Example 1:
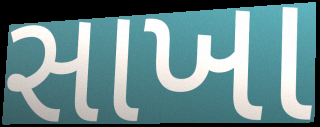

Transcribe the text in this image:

સાખા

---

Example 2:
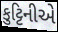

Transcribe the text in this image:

કુટ્ટિનીએ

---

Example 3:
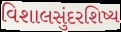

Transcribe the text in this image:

વિશાલસુંદરશિષ્ય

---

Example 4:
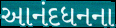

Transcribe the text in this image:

આનંદધનના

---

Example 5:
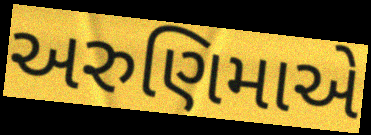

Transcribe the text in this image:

અરુણિમાએ